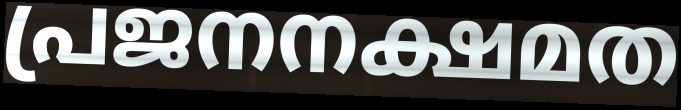
പ്രജനനക്ഷമത